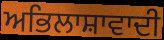
ਅਭਿਲਾਸ਼ਾਵਾਦੀ